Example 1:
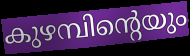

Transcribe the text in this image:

കുഴമ്പിന്റെയും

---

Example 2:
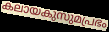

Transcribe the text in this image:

കലായകുസുമപ്രഭം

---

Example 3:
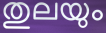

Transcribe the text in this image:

തുലയും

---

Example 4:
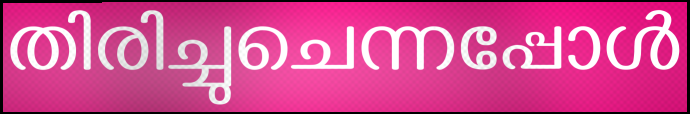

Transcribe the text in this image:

തിരിച്ചുചെന്നപ്പോൾ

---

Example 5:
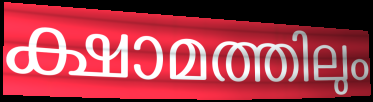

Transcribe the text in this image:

ക്ഷാമത്തിലും